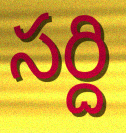
సర్ది